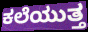
ಕಲೆಯುತ್ತ